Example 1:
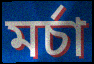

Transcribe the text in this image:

মৰ্চা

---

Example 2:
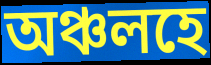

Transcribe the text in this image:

অঞ্চলহে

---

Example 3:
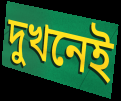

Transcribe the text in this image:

দুখনেই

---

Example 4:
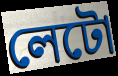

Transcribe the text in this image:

লেটো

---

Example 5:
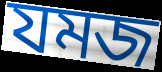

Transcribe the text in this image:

যমজ